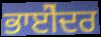
ਭਾਈੇਂਦਰ